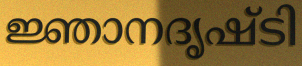
ജ്ഞാനദൃഷ്ടി